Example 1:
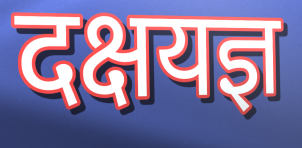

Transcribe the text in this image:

दक्षयज्ञ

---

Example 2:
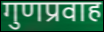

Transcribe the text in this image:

गुणप्रवाह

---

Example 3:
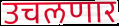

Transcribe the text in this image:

उचलणार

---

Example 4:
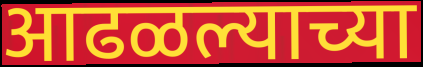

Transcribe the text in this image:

आढळल्याच्या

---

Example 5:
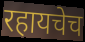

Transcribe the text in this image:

रहायचेच